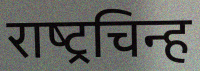
राष्ट्रचिन्ह